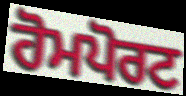
ਹੋਮਪੋਰਟ